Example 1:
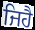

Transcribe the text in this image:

ਜਿਹੈ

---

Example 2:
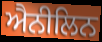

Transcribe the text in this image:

ਐਨੀਲਿਨ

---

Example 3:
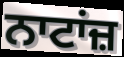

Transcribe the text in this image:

ਨਾਟਾਂਜ਼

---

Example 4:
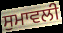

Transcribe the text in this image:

ਸੁਮਾਵਲੀ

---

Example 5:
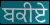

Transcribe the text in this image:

ਬਕੀਏ